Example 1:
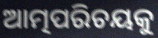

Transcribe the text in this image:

ଆତ୍ମପରିଚୟକୁ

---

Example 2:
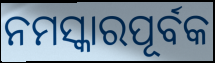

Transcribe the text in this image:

ନମସ୍କାରପୂର୍ବକ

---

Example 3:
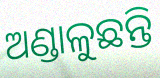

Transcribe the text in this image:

ଅଣ୍ଡାଳୁଛନ୍ତି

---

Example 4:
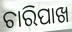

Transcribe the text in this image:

ଚାରିପାଖ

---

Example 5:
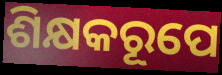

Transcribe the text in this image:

ଶିକ୍ଷକରୂପେ